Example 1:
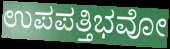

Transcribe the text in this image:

ಉಪಪತ್ತಿಭವೋ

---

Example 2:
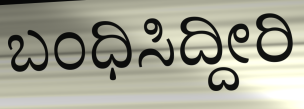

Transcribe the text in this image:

ಬಂಧಿಸಿದ್ದೀರಿ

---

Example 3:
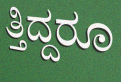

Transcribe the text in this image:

ತ್ತಿದ್ದರೂ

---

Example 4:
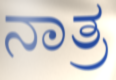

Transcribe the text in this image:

ನಾತ್ರ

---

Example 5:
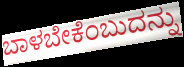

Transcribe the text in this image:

ಬಾಳಬೇಕೆಂಬುದನ್ನು